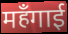
महँगाई